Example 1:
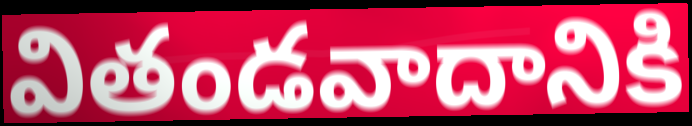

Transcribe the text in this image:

వితండవాదానికి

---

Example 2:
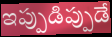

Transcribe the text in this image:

ఇప్పుడిప్పుడే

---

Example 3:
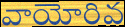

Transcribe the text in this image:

వాయోరివ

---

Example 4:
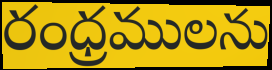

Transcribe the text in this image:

రంధ్రములను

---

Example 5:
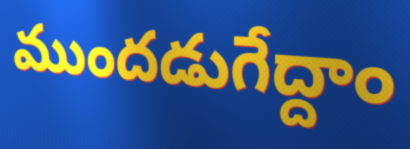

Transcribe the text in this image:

ముందడుగేద్దాం